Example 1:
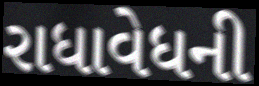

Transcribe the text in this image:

રાધાવેધની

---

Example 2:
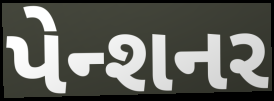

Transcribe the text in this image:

પેન્શનર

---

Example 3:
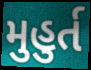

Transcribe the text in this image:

મુહુર્ત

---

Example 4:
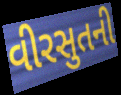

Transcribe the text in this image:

વીરસુતની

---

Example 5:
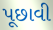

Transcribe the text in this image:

પૂછાવી